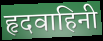
हृदवाहिनी